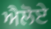
ਐਲੋਏ